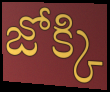
జోక్కి